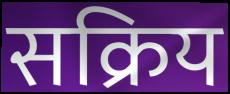
सक्रिय